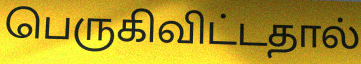
பெருகிவிட்டதால்